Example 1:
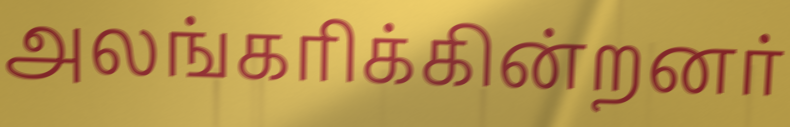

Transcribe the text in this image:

அலங்கரிக்கின்றனர்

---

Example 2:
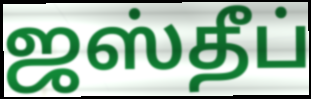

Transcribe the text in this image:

ஜஸ்தீப்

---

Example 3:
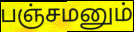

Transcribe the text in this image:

பஞ்சமனும்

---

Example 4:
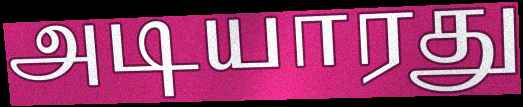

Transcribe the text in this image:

அடியாரது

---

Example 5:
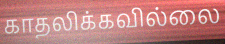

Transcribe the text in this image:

காதலிக்கவில்லை